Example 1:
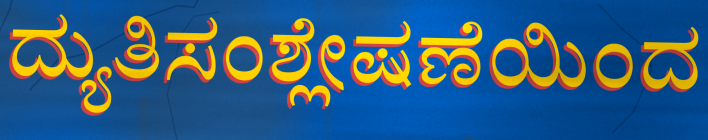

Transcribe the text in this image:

ದ್ಯುತಿಸಂಶ್ಲೇಷಣೆಯಿಂದ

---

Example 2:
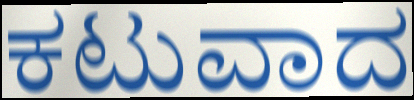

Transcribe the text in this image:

ಕಟುವಾದ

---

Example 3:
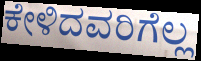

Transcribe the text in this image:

ಕೇಳಿದವರಿಗೆಲ್ಲ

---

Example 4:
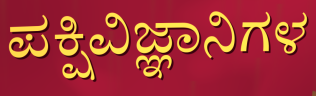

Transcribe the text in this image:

ಪಕ್ಷಿವಿಜ್ಞಾನಿಗಳ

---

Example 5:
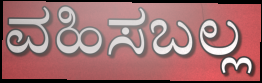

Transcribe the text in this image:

ವಹಿಸಬಲ್ಲ